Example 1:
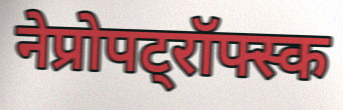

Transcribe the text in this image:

नेप्रोपट्रॉफ्स्क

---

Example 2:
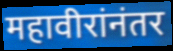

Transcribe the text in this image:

महावीरांनंतर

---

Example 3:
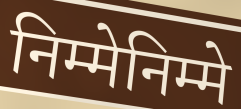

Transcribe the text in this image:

निम्मेनिम्मे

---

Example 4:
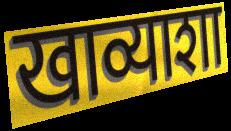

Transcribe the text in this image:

खाव्याशा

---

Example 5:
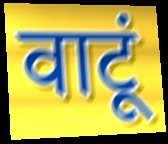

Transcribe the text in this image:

वाटूं